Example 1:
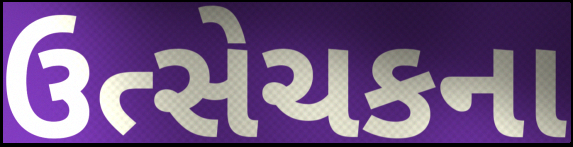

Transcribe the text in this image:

ઉત્સેચકના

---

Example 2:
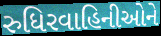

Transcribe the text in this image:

રુધિરવાહિનીઓને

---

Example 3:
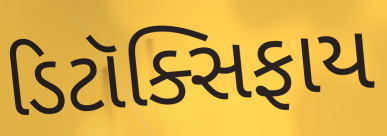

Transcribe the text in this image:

ડિટૉક્સિફાય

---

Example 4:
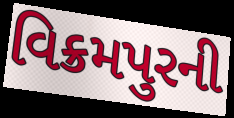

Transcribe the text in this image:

વિક્રમપુરની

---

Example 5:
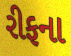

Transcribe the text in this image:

રીફના